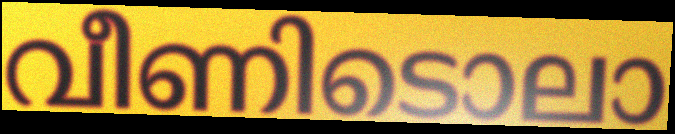
വീണിടൊലാ